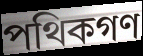
পথিকগণ